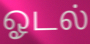
ஓடல்